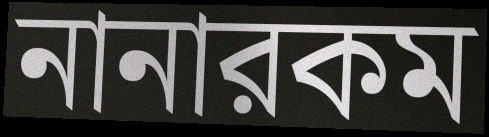
নানারকম